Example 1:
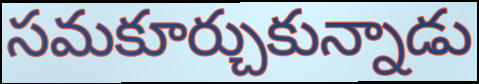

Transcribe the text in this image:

సమకూర్చుకున్నాడు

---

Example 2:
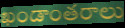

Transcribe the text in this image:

ఖండాంతరాలు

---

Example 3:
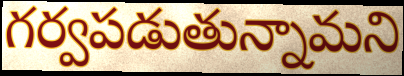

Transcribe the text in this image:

గర్వపడుతున్నామని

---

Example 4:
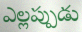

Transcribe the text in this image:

ఎల్లప్పుడు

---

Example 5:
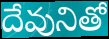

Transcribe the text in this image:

దేవునితో